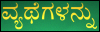
ವ್ಯಥೆಗಳನ್ನು